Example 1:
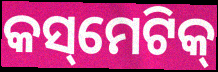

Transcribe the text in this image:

କସ୍‌ମେଟିକ୍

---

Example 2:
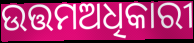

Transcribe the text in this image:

ଉତ୍ତମଅଧିକାରୀ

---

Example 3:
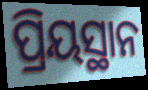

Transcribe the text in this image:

ପ୍ରିୟସ୍ଥାନ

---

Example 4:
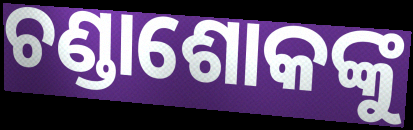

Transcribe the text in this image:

ଚଣ୍ଡାଶୋକଙ୍କୁ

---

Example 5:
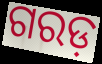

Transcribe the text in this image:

ଗରଡ଼